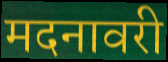
मदनावरी